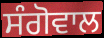
ਸੰਗੋਵਾਲ